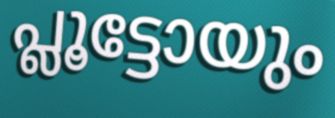
പ്ലൂട്ടോയും